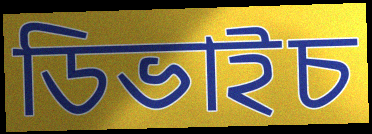
ডিভাইচ